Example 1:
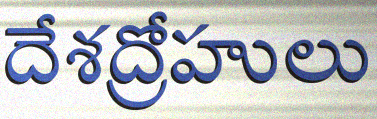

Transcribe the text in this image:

దేశద్రోహులు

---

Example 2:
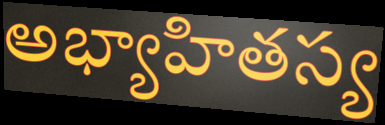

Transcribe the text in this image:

అభ్యాహితస్య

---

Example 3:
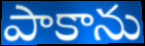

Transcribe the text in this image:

పాకాను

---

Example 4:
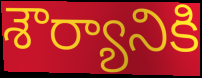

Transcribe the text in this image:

శౌర్యానికి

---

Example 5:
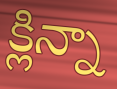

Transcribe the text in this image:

క్లిన్నా